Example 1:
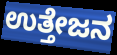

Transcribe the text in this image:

ಉತ್ತೇಜನ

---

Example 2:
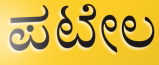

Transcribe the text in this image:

ಪಟೇಲ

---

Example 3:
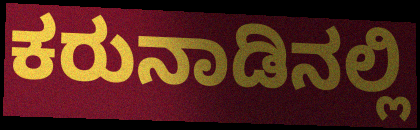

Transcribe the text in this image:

ಕರುನಾಡಿನಲ್ಲಿ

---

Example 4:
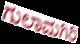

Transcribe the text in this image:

ಗುಲಾಮಗಿರಿ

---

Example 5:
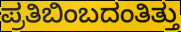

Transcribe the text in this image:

ಪ್ರತಿಬಿಂಬದಂತಿತ್ತು